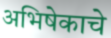
अभिषेकाचे